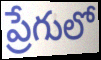
ప్రేగులో